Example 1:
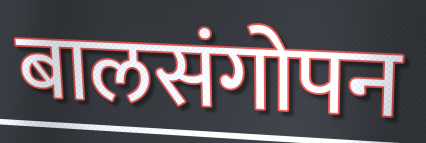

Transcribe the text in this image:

बालसंगोपन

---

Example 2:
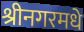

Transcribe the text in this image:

श्रीनगरमधे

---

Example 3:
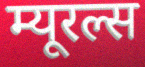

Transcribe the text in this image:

म्यूरल्स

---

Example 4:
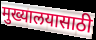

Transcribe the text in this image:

मुख्यालयासाठी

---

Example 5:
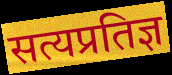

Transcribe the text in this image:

सत्यप्रतिज्ञ